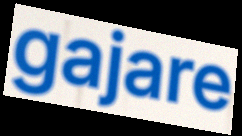
gajare